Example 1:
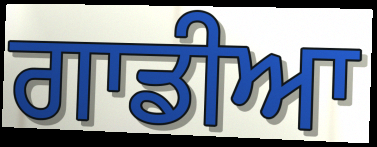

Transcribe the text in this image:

ਗਾਡੀਆ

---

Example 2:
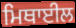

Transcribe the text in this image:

ਮਿਥਾਈਲ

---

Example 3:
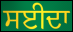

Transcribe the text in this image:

ਸਈਦਾ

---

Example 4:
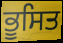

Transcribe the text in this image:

ਭੂਸਿਤ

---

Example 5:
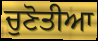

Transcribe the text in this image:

ਚੁਣੋਤੀਆ